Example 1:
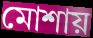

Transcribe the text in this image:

মোশায়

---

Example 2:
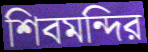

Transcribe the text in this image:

শিবমন্দির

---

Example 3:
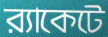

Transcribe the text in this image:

র‍্যাকেটে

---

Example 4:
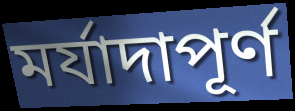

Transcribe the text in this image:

মর্যাদাপূর্ণ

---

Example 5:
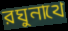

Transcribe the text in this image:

রঘুনাথে